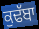
ਕੁਢੱਬਾ